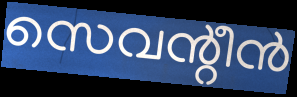
സെവന്റീൻ